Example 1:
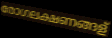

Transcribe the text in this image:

രോഗലക്ഷണങ്ങള്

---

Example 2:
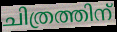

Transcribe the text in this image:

ചിത്രത്തിന്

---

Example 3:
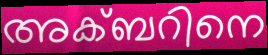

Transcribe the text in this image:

അക്ബറിനെ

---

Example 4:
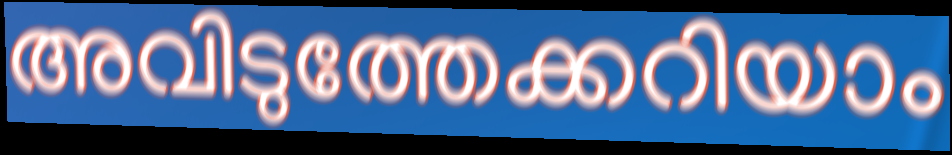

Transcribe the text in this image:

അവിടുത്തേക്കറിയാം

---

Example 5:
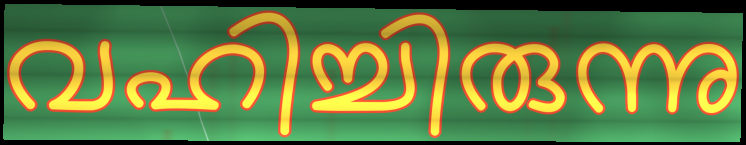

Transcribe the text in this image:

വഹിച്ചിരുന്നു